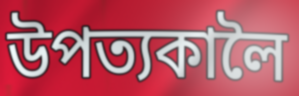
উপত্যকালৈ